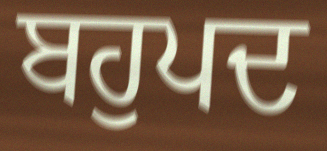
ਬਹੁਪਦ